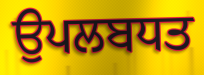
ਉਪਲਬਧਤ